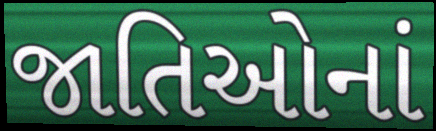
જાતિઓનાં